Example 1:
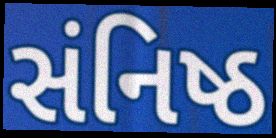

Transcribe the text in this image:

સંનિષ્ઠ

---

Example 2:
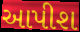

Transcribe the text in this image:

આપીશ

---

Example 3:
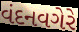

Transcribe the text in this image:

વંદનવગેરે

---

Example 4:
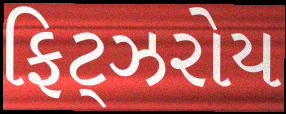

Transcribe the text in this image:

ફિટ્ઝરોય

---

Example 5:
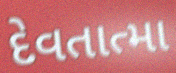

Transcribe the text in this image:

દેવતાત્મા